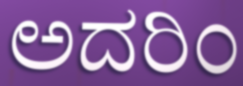
ಅದರಿಂ